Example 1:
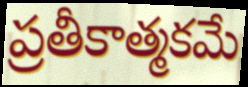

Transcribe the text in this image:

ప్రతీకాత్మకమే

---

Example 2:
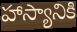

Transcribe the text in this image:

హాస్యానికి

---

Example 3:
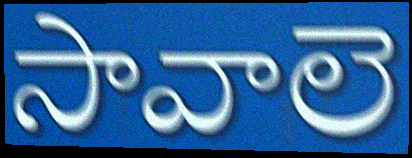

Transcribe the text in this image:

సావాలె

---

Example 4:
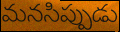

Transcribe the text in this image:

మనసిప్పుడు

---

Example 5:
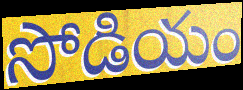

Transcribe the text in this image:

సోడియం